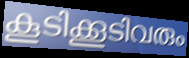
കൂടിക്കൂടിവരും